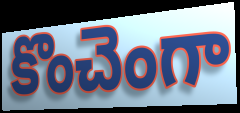
కొంచెంగా